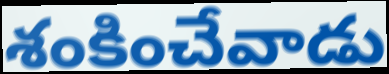
శంకించేవాడు